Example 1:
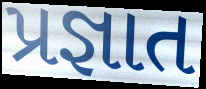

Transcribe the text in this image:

પ્રજ્ઞાત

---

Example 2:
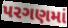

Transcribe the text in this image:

પરગણમાં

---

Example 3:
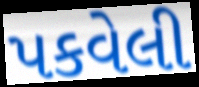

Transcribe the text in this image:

પકવેલી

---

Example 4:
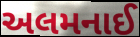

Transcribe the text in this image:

અલમનાઈ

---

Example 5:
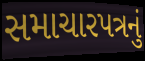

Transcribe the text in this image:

સમાચારપત્રનું